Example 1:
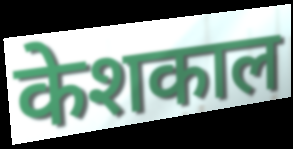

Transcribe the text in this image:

केशकाल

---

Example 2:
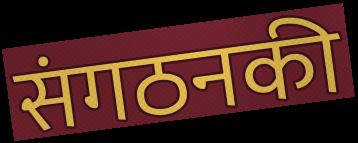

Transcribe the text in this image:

संगठनकी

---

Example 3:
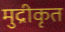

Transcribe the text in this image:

मुद्रीकृत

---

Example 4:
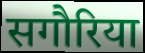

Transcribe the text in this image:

सगौरिया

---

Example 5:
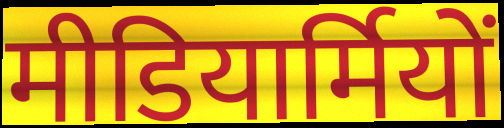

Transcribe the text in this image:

मीडियार्मियों